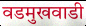
वडमुखवाडी